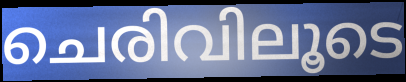
ചെരിവിലൂടെ